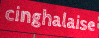
cinghalaise